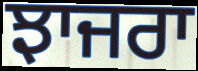
ਝਾਜਰਾ